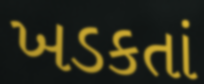
ખડકતાં